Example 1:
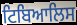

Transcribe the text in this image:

ਟਿਬਿਆਲਿਸ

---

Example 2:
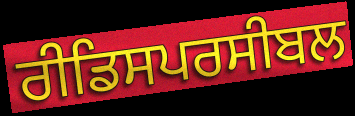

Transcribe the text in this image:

ਰੀਡਿਸਪਰਸੀਬਲ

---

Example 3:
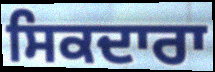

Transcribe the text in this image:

ਸਿਕਦਾਰਾ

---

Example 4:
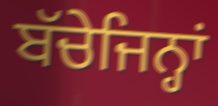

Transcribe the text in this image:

ਬੱਚੇਜਿਨ੍ਹਾਂ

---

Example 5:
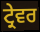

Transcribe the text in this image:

ਟ੍ਰੇਵਰ